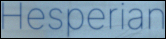
Hesperian